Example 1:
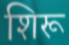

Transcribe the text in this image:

शिरू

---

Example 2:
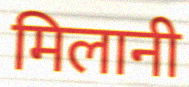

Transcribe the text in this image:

मिलानी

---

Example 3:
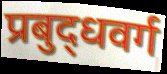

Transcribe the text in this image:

प्रबुद्धवर्ग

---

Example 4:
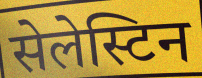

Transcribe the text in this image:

सेलेस्टिन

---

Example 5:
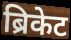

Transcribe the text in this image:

ब्रिकेट